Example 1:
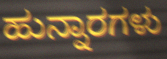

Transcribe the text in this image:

ಹುನ್ನಾರಗಳು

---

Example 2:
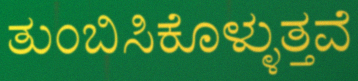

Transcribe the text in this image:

ತುಂಬಿಸಿಕೊಳ್ಳುತ್ತವೆ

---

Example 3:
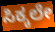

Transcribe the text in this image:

ಸಿಕ್ಕಲೇ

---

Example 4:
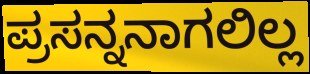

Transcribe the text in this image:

ಪ್ರಸನ್ನನಾಗಲಿಲ್ಲ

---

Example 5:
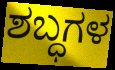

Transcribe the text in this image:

ಶಬ್ಧಗಳ